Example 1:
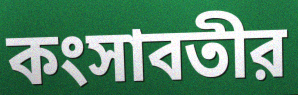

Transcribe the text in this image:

কংসাবতীর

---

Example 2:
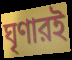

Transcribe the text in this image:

ঘৃণারই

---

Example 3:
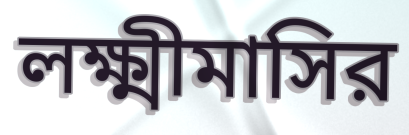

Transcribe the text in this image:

লক্ষ্মীমাসির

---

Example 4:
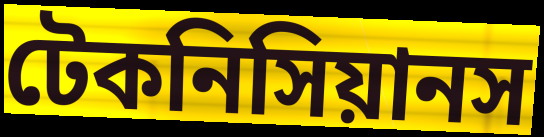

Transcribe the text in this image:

টেকনিসিয়ানস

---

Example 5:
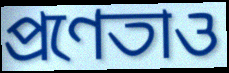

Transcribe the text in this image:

প্রণেতাও